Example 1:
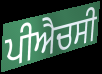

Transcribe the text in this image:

ਪੀਐਚਸੀ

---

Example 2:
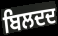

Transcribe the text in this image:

ਬਿਲਦਦ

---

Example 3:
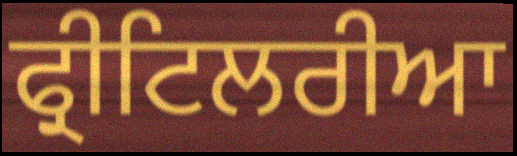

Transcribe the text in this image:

ਫ੍ਰੀਟਿਲਰੀਆ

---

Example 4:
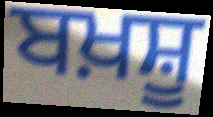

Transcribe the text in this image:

ਬਖ਼ਸ਼ੂ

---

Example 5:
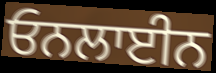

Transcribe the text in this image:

ਓਨਲਾਈਨ